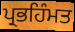
ਪ੍ਰਭਹਿੰਮਤ